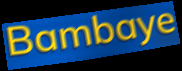
Bambaye